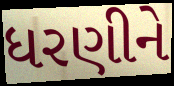
ધરણીને